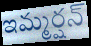
ఇమ్మర్షన్